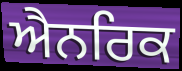
ਐਨਰਿਕ